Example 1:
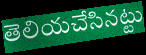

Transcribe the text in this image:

తెలియచేసినట్టు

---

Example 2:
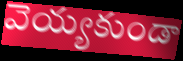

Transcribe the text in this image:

వెయ్యకుండా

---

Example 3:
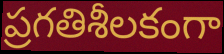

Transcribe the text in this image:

ప్రగతిశీలకంగా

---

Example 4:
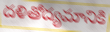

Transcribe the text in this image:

దళితోద్యమానికి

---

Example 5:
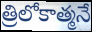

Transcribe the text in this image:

త్రిలోకాత్మనే